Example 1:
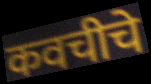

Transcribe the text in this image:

कवचीचे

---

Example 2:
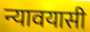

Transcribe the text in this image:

न्यावयासी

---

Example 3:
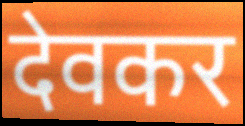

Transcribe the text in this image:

देवकर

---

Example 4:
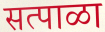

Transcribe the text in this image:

सत्पाळा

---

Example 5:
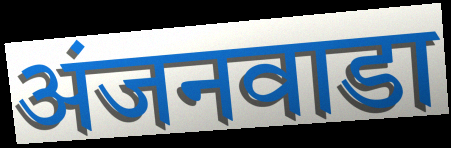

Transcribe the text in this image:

अंजनवाडा